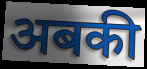
अबकी